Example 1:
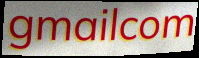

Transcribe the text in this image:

gmailcom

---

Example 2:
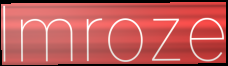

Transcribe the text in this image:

Imroze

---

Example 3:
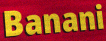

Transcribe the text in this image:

Banani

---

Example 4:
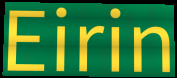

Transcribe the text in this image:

Eirin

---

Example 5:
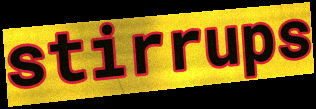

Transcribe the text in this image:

stirrups